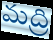
మద్రి